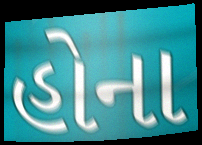
હોના